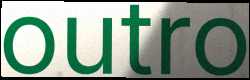
outro